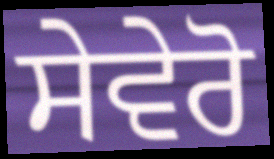
ਸੇਵੇਰੋ